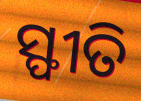
ସ୍ଫୀତି